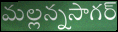
మల్లన్నసాగర్